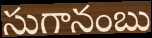
సుగానంబు